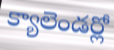
క్యాలెండర్లో